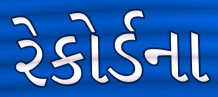
રેકોર્ડના